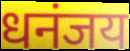
धनंजय